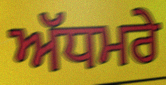
ਅੱਧਮਰੇ